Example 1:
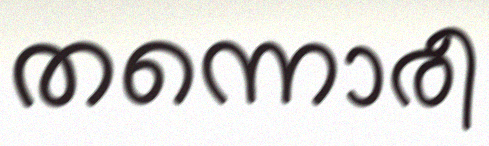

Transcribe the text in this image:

തന്നൊരീ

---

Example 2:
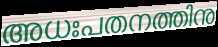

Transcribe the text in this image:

അധഃപതനത്തിനു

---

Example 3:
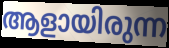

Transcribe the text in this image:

ആളായിരുന്ന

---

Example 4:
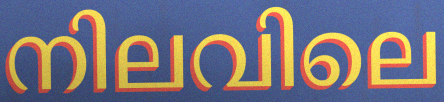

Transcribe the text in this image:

നിലവിലെ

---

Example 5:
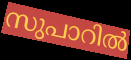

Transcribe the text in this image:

സുപാറിൽ